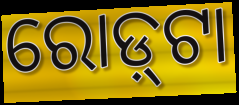
ରୋଡ଼୍‌ଟା